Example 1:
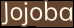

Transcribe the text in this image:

Jojoba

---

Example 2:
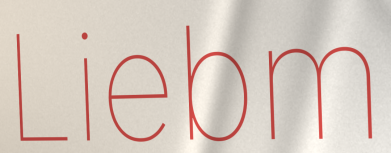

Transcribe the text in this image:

Liebm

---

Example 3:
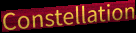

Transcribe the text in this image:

Constellation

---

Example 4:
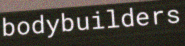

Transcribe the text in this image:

bodybuilders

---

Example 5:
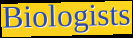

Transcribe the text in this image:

Biologists